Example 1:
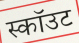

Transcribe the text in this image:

स्कॉउट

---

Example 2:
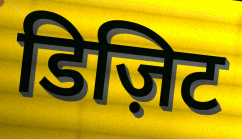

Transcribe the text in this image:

डिज़िट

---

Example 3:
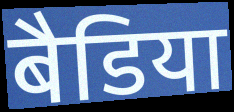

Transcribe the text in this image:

बैडिया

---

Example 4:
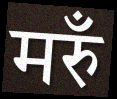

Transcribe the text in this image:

मरुँ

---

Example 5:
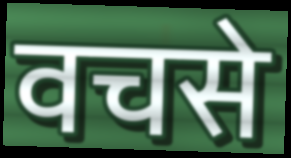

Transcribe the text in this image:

वचसे